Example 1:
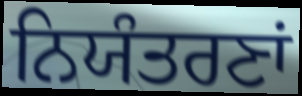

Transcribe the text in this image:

ਨਿਯੰਤਰਣਾਂ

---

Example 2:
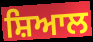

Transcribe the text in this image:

ਸ਼ਿਆਲ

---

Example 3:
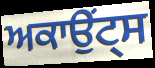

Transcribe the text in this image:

ਅਕਾਉਂਟ੍ਸ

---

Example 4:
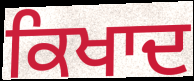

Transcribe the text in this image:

ਕਿਖਾਦ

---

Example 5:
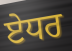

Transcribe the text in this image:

ਏਧਰ